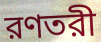
রণতরী